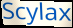
Scylax